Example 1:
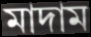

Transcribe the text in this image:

মাদাম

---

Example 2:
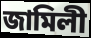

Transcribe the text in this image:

জামিলী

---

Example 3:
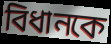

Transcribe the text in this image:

বিধানকে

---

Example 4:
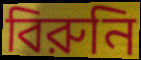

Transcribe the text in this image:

বিরুনি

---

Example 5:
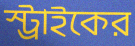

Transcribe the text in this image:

স্ট্রাইকের